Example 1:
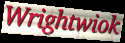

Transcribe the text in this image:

Wrightwiok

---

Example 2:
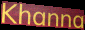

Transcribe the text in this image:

Khanna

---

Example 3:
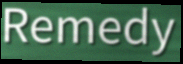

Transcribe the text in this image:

Remedy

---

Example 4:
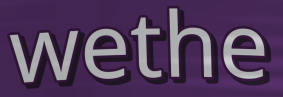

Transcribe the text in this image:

wethe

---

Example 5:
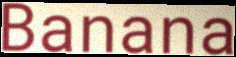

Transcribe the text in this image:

Banana